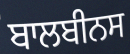
ਬਾਲਬੀਨਸ